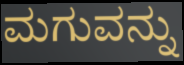
ಮಗುವನ್ನು